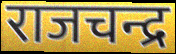
राजचन्द्र